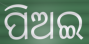
ପିଅଇ